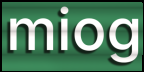
miog